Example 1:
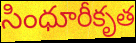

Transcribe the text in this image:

సింధూరీకృత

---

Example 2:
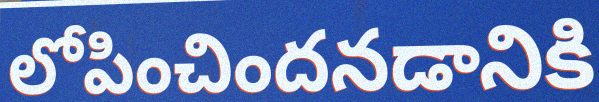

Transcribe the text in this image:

లోపించిందనడానికి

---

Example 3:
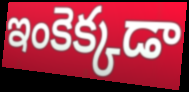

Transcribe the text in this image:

ఇంకెక్కడా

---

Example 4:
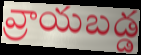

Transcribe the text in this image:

వ్రాయబడ్డ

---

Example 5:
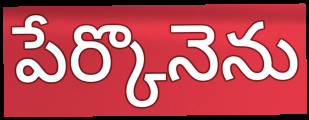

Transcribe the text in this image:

పేర్కొనెను